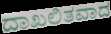
ದಾಖಲಿತವಾದ